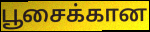
பூசைக்கான